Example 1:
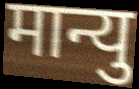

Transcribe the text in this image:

मान्यु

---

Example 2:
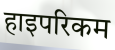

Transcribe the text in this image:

हाइपरिकम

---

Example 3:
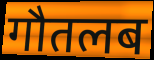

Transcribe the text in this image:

गौतलब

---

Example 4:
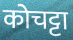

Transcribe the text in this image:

कोचट्टा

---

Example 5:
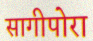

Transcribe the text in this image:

सागीपोरा